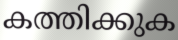
കത്തിക്കുക